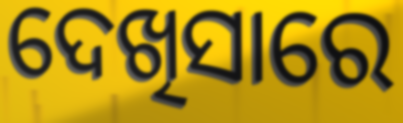
ଦେଖିସାରେ